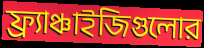
ফ্র্যাঞ্চাইজিগুলোর